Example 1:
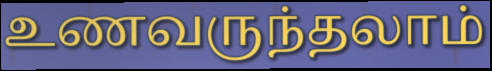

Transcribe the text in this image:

உணவருந்தலாம்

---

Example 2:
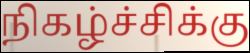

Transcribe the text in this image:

நிகழ்ச்சிக்கு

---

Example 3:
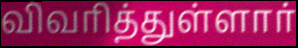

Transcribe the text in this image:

விவரித்துள்ளார்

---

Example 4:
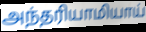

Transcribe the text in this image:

அந்தரியாமியாய்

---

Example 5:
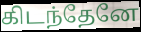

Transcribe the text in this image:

கிடந்தேனே